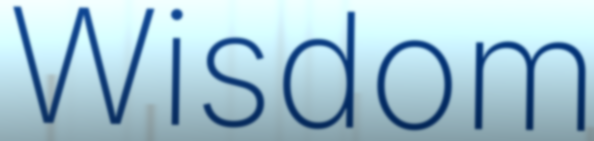
Wisdom